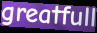
greatfull